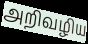
அறிவழிய